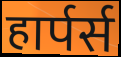
हार्पर्स